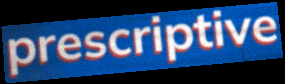
prescriptive